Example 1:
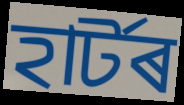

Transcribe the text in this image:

হাৰ্টৰ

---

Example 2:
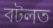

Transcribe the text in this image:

বটলত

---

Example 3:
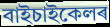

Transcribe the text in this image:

বাইচাইকেলৰ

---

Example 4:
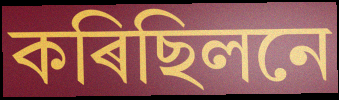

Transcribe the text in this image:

কৰিছিলনে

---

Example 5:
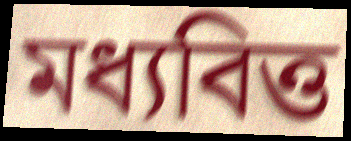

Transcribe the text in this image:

মধ্যবিত্ত